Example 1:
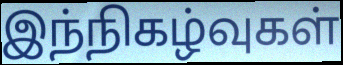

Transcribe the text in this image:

இந்நிகழ்வுகள்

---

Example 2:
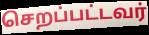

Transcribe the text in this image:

செறப்பட்டவர்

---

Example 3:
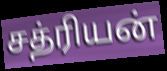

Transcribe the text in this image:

சத்ரியன்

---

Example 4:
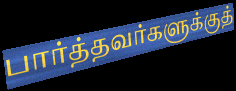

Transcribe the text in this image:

பார்த்தவர்களுக்குத்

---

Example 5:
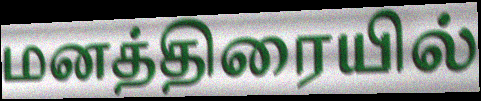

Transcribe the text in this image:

மனத்திரையில்